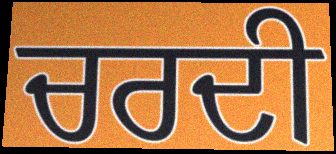
ਚਰਦੀ